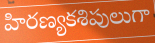
హిరణ్యకశిపులుగా